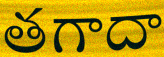
తగాదా